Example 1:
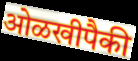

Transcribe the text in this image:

ओळखीपैकी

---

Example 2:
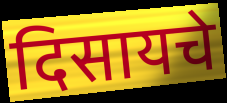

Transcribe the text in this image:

दिसायचे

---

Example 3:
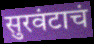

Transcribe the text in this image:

सुरवंटाचं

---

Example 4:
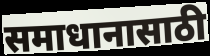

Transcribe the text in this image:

समाधानासाठी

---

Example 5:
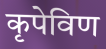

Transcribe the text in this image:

कृपेविण